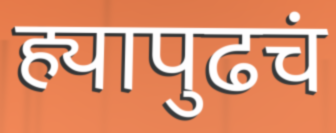
ह्यापुढचं